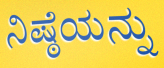
ನಿಷ್ಠೆಯನ್ನು